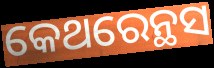
କେଥରେନ୍ଥସ